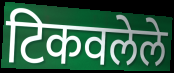
टिकवलेले